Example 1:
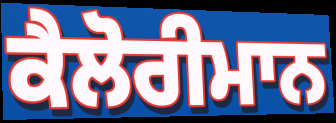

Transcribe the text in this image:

ਕੈਲੋਰੀਮਾਨ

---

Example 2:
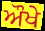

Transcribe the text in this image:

ਔਖੇ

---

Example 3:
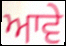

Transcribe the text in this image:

ਆਵੇ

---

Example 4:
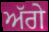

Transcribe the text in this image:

ਅੱਗੇ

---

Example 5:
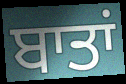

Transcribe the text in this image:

ਬਾਤਾਂ